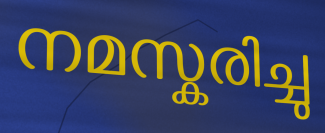
നമസ്കരിച്ചു